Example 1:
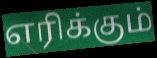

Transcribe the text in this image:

எரிக்கும்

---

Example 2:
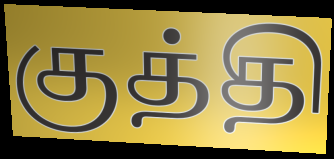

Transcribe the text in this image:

குத்தி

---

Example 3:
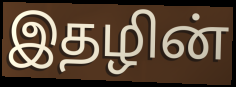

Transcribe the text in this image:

இதழின்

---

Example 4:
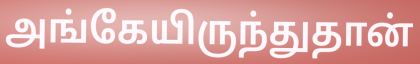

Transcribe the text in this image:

அங்கேயிருந்துதான்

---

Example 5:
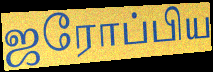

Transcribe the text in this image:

ஜரோப்பிய